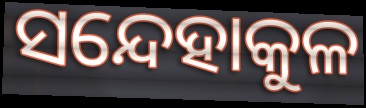
ସନ୍ଦେହାକୁଳ